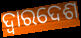
ଦ୍ଵାରଦେଶ